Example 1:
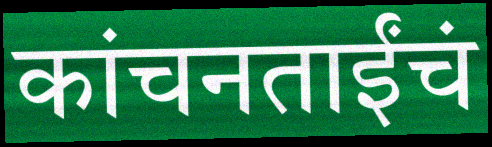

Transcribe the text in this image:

कांचनताईंचं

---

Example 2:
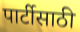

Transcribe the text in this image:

पार्टीसाठी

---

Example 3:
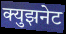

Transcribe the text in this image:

क्युझनेट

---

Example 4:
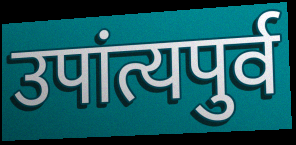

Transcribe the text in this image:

उपांत्यपुर्व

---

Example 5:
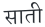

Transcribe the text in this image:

साती